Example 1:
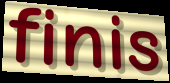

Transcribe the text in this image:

finis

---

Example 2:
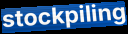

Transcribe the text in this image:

stockpiling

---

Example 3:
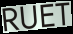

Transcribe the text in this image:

RUET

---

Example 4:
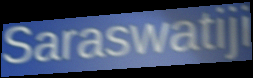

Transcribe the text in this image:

Saraswatiji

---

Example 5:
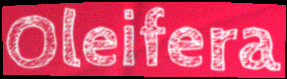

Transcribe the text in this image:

Oleifera